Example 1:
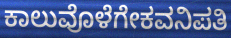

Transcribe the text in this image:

ಕಾಲುವೊಳೆಗೇಕವನಿಪತಿ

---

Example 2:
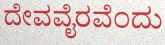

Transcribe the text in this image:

ದೇವವೈರವೆಂದು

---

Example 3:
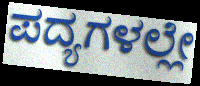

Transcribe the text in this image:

ಪದ್ಯಗಳಲ್ಲೇ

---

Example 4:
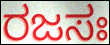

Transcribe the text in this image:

ರಜಸಃ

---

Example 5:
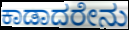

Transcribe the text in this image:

ಕಾಡಾದರೇನು